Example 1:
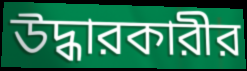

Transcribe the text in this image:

উদ্ধারকারীর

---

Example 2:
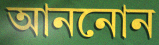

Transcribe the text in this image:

আননোন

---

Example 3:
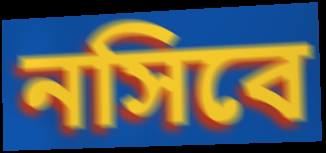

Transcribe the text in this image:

নসিবে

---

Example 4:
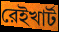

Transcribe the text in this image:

রেইখার্ট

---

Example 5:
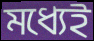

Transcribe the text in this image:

মধ্যেই